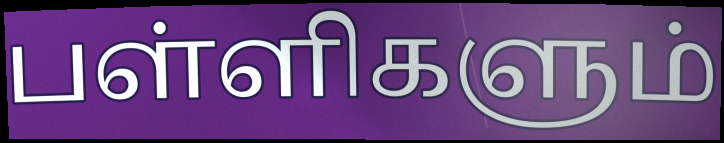
பள்ளிகளும்